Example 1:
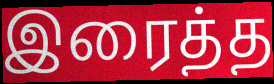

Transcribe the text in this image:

இரைத்த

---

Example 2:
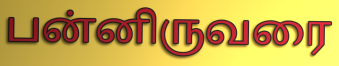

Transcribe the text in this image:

பன்னிருவரை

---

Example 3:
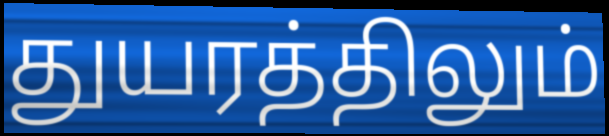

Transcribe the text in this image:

துயரத்திலும்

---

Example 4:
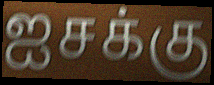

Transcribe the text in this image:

ஐசக்கு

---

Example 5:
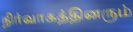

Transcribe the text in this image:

நிர்வாகத்தினரும்